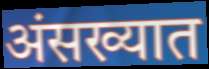
अंसख्यात